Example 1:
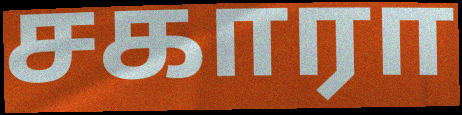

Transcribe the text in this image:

சகாரா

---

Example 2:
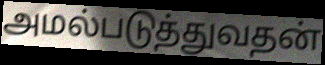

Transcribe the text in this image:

அமல்படுத்துவதன்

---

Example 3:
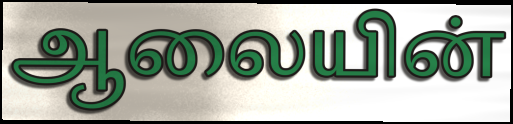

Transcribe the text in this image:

ஆலையின்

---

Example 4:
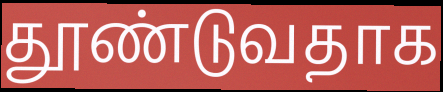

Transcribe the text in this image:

தூண்டுவதாக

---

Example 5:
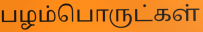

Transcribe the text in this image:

பழம்பொருட்கள்